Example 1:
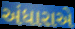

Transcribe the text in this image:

અંધારાએ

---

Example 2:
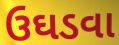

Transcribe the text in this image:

ઉઘડવા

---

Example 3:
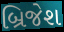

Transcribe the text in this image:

બ્રિજેશ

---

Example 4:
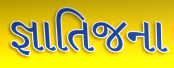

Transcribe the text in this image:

જ્ઞાતિજના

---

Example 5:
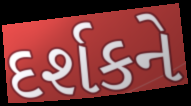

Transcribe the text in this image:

દર્શકને